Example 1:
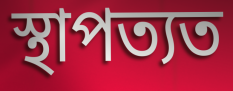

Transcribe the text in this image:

স্থাপত্যত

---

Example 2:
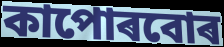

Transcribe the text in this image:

কাপোৰবোৰ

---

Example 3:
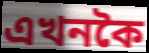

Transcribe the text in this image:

এখনকৈ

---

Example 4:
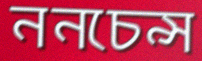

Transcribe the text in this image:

ননচেন্স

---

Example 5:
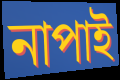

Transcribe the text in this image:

নাপাই